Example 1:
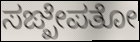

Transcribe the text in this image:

ಸಙ್ಖೇಪತೋ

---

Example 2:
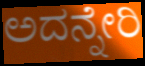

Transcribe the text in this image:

ಅದನ್ನೇರಿ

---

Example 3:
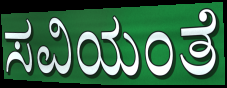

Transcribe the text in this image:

ಸವಿಯಂತೆ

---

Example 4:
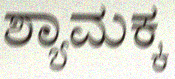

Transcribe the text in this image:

ಶ್ಯಾಮಕ್ಕ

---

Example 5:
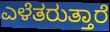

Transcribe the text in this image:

ಎಳೆತರುತ್ತಾರೆ